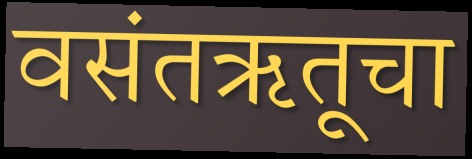
वसंतऋतूचा